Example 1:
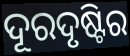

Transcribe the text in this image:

ଦୂରଦୃଷ୍ଟିର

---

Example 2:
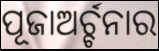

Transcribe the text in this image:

ପୂଜାଅର୍ଚ୍ଚନାର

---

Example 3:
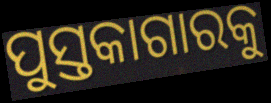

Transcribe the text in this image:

ପୁସ୍ତକାଗାରକୁ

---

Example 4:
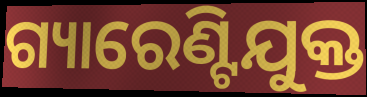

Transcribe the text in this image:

ଗ୍ୟାରେଣ୍ଟିଯୁକ୍ତ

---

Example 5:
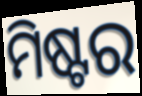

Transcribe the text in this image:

ମିଷ୍ଟର